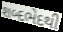
શબ્દભેદથી